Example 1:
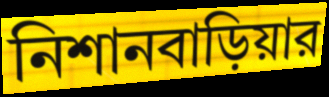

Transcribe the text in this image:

নিশানবাড়িয়ার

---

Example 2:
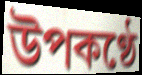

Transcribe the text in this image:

উপকণ্ঠে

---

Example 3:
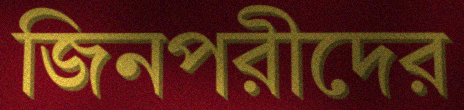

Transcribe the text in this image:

জিনপরীদের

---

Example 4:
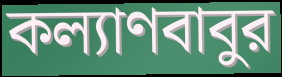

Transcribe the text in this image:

কল্যাণবাবুর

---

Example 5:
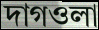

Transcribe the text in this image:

দাগওলা